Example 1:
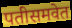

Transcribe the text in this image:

पतीसमवेत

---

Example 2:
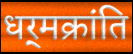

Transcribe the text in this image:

धर्मक्रांति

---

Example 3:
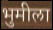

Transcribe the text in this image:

भुमीला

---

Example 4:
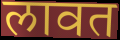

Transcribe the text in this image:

लावत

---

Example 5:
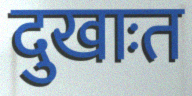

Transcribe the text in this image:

दुखाःत